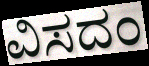
ವಿಸದಂ